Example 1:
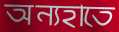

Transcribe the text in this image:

অন্যহাতে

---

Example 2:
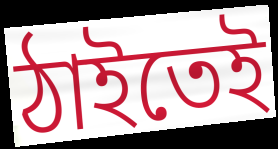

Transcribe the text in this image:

ঠাইতেই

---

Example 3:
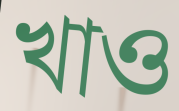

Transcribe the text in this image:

খাও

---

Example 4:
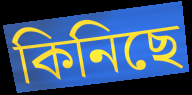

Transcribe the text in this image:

কিনিছে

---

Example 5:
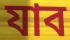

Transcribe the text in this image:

যাব